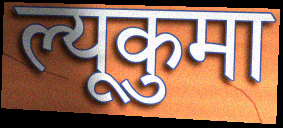
ल्यूकुमा